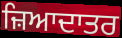
ਜ਼ਿਆਦਾਤਰ